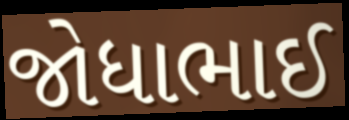
જોધાભાઈ